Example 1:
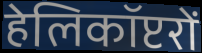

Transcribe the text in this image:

हेलिकॉप्टरों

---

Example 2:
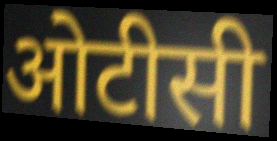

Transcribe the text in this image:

ओटीसी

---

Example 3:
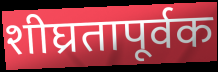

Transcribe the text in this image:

शीघ्रतापूर्वक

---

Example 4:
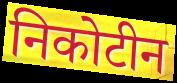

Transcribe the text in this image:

निकोटीन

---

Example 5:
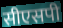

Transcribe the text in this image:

सीएसपी